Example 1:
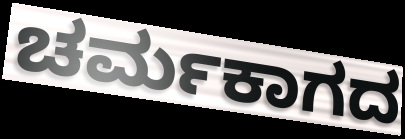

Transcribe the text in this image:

ಚರ್ಮಕಾಗದ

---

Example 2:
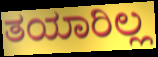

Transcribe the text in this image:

ತಯಾರಿಲ್ಲ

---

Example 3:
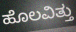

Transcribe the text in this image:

ಹೊಲವಿತ್ತು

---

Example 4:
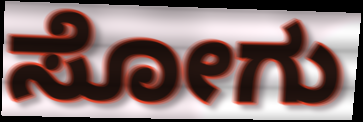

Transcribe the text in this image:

ಸೋಗು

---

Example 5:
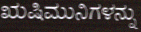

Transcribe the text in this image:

ಋಷಿಮುನಿಗಳನ್ನು